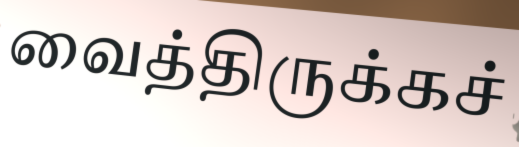
வைத்திருக்கச்